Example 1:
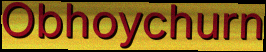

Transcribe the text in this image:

Obhoychurn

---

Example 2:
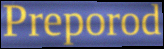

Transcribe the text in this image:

Preporod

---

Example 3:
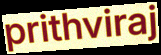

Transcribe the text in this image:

prithviraj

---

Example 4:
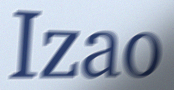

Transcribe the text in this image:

Izao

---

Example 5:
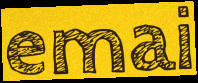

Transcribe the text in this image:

emai